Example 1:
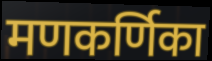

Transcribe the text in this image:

मणकर्णिका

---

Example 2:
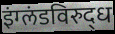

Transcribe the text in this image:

इंग्लंडविरुद्ध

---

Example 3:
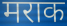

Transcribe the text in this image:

मराक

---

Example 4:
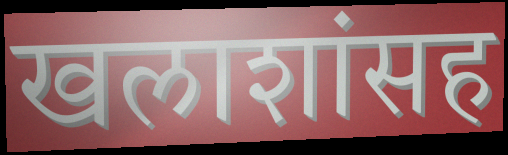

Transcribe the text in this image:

खलाशांसह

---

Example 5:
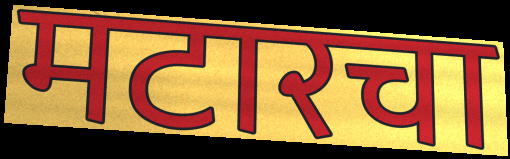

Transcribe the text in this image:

मटारचा